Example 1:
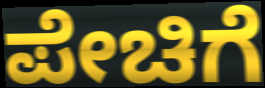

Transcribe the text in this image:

ಪೇಚಿಗೆ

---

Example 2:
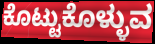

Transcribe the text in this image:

ಕೊಟ್ಟುಕೊಳ್ಳುವ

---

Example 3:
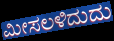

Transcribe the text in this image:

ಮೀಸಲಳಿದುದು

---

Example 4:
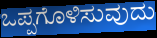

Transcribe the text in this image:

ಒಪ್ಪಗೊಳಿಸುವುದು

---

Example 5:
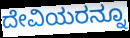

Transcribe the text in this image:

ದೇವಿಯರನ್ನೂ